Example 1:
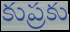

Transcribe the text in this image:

కుప్రకు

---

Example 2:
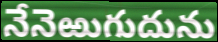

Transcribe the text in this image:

నేనెఱుగుదును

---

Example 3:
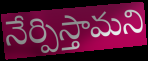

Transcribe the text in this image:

నేర్పిస్తామని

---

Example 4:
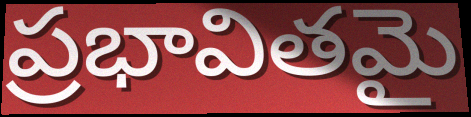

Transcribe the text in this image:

ప్రభావితమై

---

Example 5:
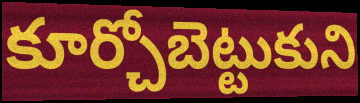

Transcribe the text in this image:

కూర్చోబెట్టుకుని